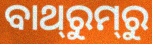
ବାଥ୍‌ରୁମ୍‌ରୁ